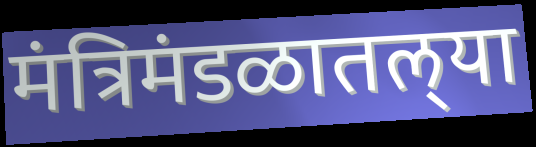
मंत्रिमंडळातल्या